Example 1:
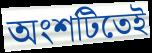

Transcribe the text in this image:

অংশটিতেই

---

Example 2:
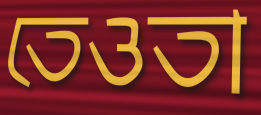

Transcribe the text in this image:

তেওতা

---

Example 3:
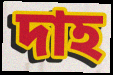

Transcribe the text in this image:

দাহ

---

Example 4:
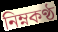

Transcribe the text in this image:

নিম্নকণ্ঠ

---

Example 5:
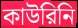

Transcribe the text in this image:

কাউরিনি